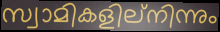
സ്വാമികളില്നിന്നും